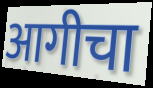
आगीचा